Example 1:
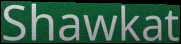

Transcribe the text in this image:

Shawkat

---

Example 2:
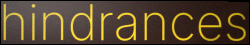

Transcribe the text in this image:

hindrances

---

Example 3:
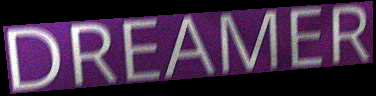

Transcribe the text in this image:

DREAMER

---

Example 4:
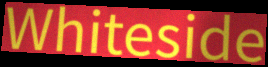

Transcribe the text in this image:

Whiteside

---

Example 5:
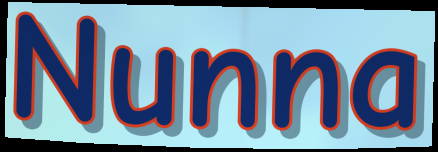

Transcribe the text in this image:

Nunna